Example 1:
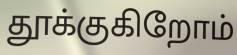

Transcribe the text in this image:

தூக்குகிறோம்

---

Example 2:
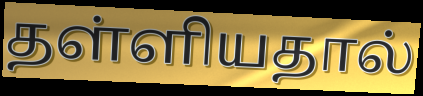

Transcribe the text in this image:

தள்ளியதால்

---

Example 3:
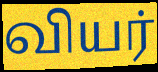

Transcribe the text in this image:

வியர்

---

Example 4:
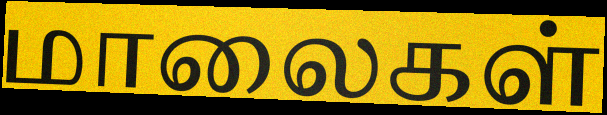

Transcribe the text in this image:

மாலைகள்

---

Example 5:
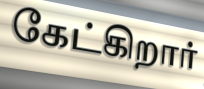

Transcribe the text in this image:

கேட்கிறார்